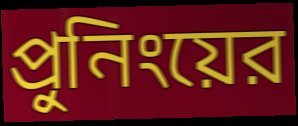
প্রুনিংয়ের